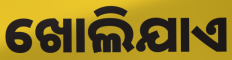
ଖୋଲିଯାଏ